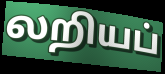
லறியப்